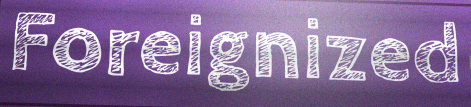
Foreignized